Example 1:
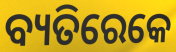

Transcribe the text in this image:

ବ୍ୟତିରେକେ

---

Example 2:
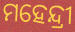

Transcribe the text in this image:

ମହେନ୍ଦ୍ରୀ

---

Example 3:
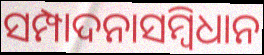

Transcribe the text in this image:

ସମ୍ପାଦନାସମ୍ବିଧାନ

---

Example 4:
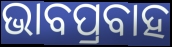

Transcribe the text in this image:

ଭାବପ୍ରବାହ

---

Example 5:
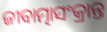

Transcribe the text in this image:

ଜୀବାତ୍ମାସଂକ୍ରାନ୍ତ